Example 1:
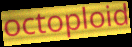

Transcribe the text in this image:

octoploid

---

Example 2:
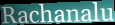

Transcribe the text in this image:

Rachanalu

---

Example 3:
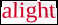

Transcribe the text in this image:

alight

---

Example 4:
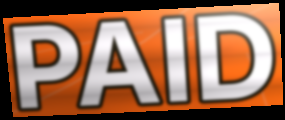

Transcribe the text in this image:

PAID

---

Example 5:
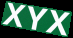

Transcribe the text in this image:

XYX